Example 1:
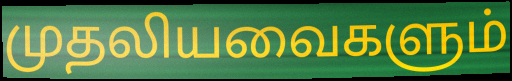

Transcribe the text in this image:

முதலியவைகளும்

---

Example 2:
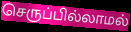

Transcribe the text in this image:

செருப்பில்லாமல்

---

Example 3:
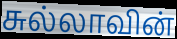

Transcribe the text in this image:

சுல்லாவின்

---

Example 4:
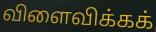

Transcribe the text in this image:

விளைவிக்கக்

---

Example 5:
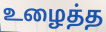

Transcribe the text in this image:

உழைத்த